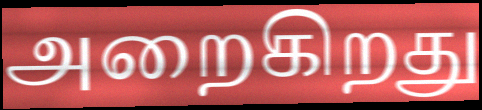
அறைகிறது